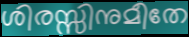
ശിരസ്സിനുമീതേ